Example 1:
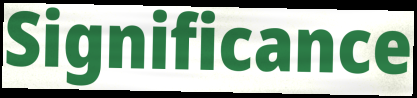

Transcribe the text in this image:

Significance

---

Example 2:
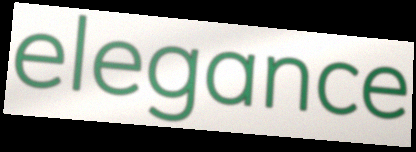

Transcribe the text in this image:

elegance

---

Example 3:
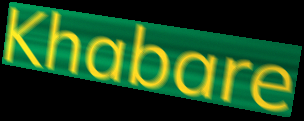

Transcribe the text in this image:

Khabare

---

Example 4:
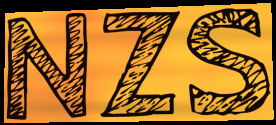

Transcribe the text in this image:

NZS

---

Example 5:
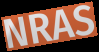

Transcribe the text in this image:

NRAS